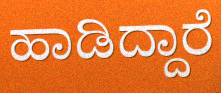
ಹಾಡಿದ್ದಾರೆ